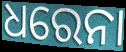
ଧରେନା